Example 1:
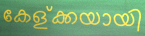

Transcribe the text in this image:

കേള്ക്കയായി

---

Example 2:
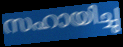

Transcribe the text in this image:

സഹായിച്ചു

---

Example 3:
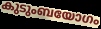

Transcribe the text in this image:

കുടുംബയോഗം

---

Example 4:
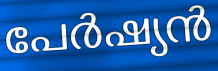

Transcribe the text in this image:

പേർഷ്യൻ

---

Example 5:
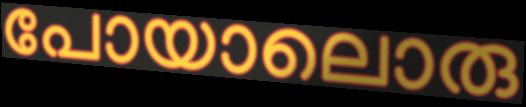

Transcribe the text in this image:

പോയാലൊരു